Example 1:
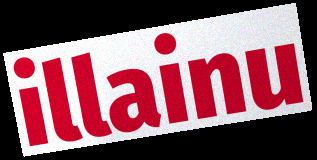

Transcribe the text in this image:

illainu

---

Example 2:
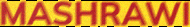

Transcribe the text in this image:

MASHRAWI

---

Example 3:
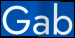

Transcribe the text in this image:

Gab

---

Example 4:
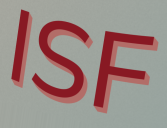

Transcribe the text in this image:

ISF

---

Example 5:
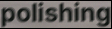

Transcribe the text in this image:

polishing